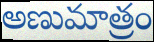
అణుమాత్రం